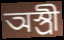
অস্ত্রী